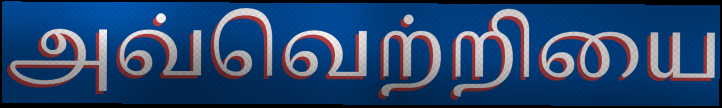
அவ்வெற்றியை